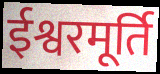
ईश्वरमूर्ति